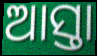
ଆସ୍ତା